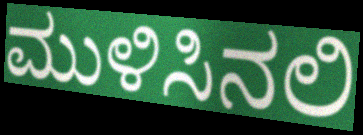
ಮುಳಿಸಿನಲಿ